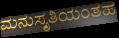
ಮನುಸ್ಮೃತಿಯಂತಹ